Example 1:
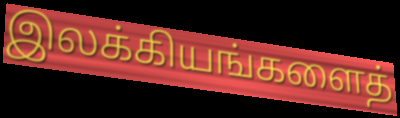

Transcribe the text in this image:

இலக்கியங்களைத்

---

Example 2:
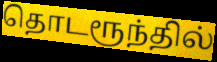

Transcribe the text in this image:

தொடரூந்தில்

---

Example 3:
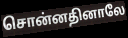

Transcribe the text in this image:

சொன்னதினாலே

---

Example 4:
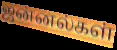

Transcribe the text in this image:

ஜன்னல்கள்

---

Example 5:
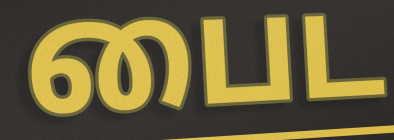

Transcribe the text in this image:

பைட